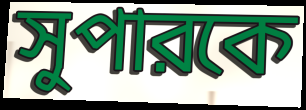
সুপারকে